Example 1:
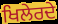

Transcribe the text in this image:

ਖਿਲੇਰਦੇ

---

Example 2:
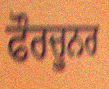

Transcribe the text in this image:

ਫੌਰਚੂਨਰ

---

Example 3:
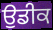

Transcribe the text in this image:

ਉਡੀਕ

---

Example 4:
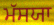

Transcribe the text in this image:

ਮੱਸਯਾ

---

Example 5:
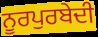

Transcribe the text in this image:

ਨੂਰਪੁਰਬੇਦੀ